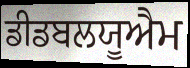
ਡੀਡਬਲਯੂਐਮ